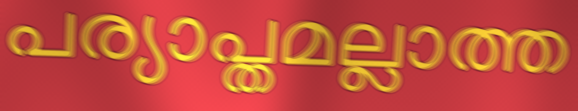
പര്യാപ്തമല്ലാത്ത